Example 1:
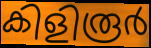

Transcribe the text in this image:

കിളിരൂർ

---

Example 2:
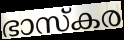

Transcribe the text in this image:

ഭാസ്കര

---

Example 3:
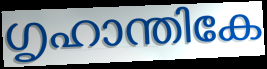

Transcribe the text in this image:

ഗൃഹാന്തികേ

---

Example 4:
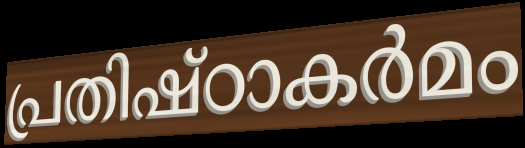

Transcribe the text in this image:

പ്രതിഷ്ഠാകർമം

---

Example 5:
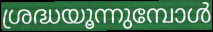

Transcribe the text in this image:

ശ്രദ്ധയൂന്നുമ്പോൾ